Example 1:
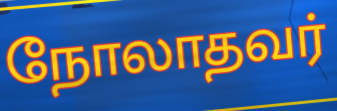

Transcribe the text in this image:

நோலாதவர்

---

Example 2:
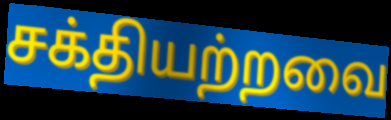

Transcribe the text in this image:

சக்தியற்றவை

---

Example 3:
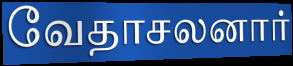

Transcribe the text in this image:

வேதாசலனார்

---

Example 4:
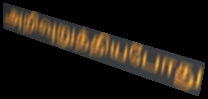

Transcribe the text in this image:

அறிவுறுத்தியபோது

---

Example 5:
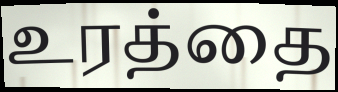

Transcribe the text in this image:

உரத்தை